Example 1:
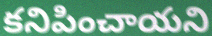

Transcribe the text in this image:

కనిపించాయని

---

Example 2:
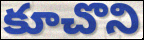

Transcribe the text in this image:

కూచొని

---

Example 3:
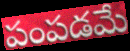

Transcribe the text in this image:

పంపడమే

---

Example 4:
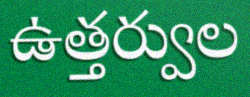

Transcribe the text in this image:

ఉత్తర్వుల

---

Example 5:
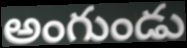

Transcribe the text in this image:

అంగుండు